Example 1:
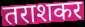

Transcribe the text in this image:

तराशकर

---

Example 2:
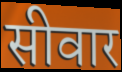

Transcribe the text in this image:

सीवार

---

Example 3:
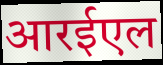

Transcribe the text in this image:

आरईएल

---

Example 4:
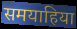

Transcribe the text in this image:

समयाहिया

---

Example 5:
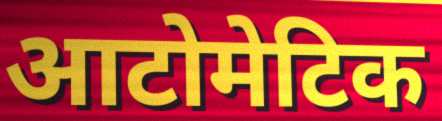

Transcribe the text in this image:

आटोमेटिक